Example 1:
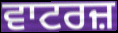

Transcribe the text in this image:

ਵਾਟਰਜ਼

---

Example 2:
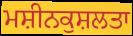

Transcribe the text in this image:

ਮਸ਼ੀਨਕੁਸ਼ਲਤਾ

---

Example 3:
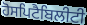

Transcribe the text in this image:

ਹੋਸਪਿਟੈਬਿਲੀਟੀ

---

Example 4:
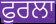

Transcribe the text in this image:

ਫੁਰਲਾ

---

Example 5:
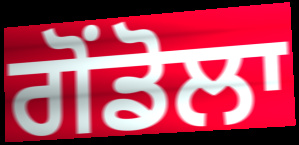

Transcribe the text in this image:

ਗੋਂਡੋਲਾ